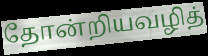
தோன்றியவழித்